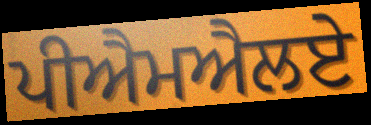
ਪੀਐਮਐਲਏ